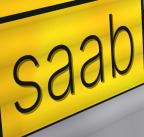
saab